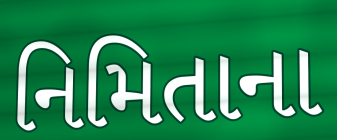
નિમિતાના